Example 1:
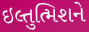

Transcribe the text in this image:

ઇલ્તુત્મિશને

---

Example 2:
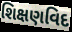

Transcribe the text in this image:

શિક્ષણવિદ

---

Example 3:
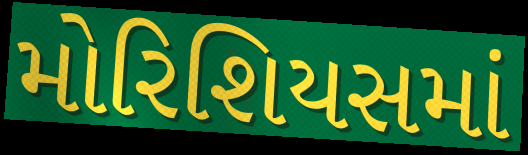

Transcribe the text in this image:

મોરિશિયસમાં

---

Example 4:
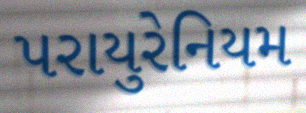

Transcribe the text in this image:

પરાયુરેનિયમ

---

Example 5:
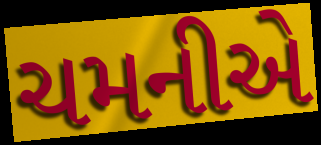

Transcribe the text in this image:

ચમનીએ